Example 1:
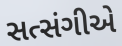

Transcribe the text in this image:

સત્સંગીએ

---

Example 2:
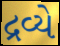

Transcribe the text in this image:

દ્રવ્યે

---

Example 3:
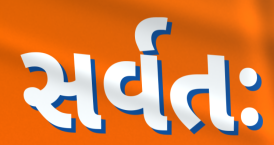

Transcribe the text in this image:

સર્વતઃ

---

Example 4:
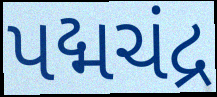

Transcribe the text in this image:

પદ્મચંદ્ર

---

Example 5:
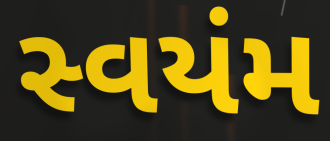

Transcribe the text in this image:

સ્વયંમ